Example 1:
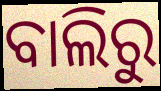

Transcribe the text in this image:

ବାଲିରୁ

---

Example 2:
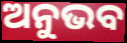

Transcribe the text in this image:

ଅନୁଭବ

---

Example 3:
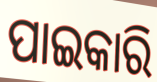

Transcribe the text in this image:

ପାଇକାରି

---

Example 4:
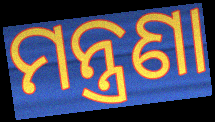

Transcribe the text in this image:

ମନ୍ତ୍ରଣା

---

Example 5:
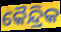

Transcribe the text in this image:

କୈନ୍ଦ୍ରିକ